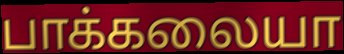
பாக்கலையா